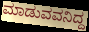
ಮಾಡುವವನಿದ್ದ